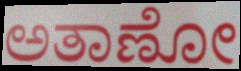
ಅತಾಣೋ